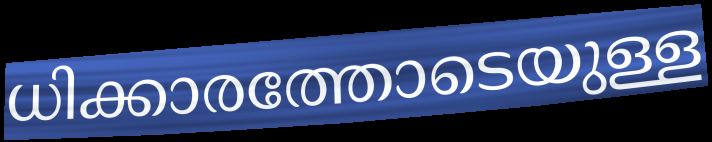
ധിക്കാരത്തോടെയുള്ള